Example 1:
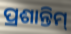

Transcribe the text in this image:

ପ୍ରଶାନ୍ତିମ୍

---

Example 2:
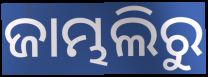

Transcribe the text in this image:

ଜାମ୍ଭଲିରୁ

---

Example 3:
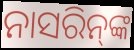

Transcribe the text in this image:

ନାସରିନ୍‌ଙ୍କ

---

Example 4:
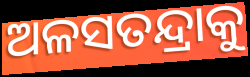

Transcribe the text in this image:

ଅଳସତନ୍ଦ୍ରାକୁ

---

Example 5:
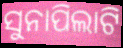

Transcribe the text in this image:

ସୁନାପିଲାଟି